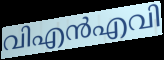
വിഎൻഎവി